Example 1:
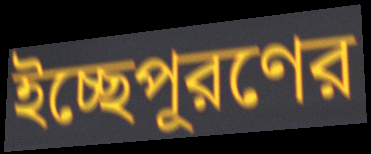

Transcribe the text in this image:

ইচ্ছেপূরণের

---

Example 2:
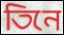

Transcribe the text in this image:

তিনে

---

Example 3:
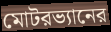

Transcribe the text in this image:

মোটরভ্যানের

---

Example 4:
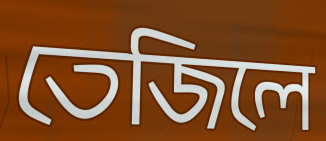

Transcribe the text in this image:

তেজিলে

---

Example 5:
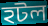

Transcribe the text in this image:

হটল